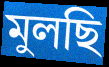
মুলছি